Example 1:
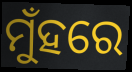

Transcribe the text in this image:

ମୁଁହରେ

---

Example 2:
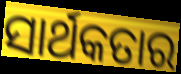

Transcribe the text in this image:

ସାର୍ଥକତାର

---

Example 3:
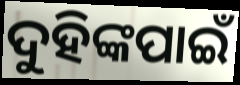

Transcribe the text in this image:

ଦୁହିଙ୍କପାଇଁ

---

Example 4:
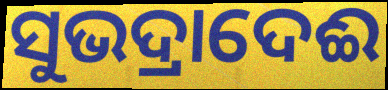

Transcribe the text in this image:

ସୁଭଦ୍ରାଦେଈ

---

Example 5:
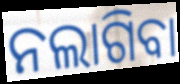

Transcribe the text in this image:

ନଲାଗିବା